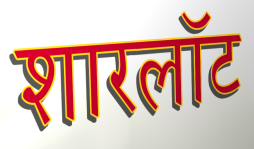
शारलॉट